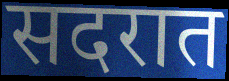
सदरात